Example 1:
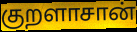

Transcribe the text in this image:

குறளாசான்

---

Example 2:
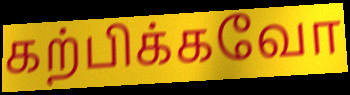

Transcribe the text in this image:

கற்பிக்கவோ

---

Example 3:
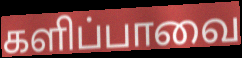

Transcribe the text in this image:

களிப்பாவை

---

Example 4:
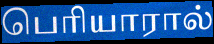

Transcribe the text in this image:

பெரியாரால்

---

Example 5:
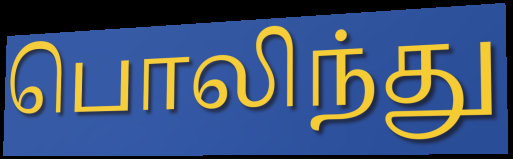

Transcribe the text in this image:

பொலிந்து